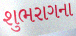
શુભરાગના